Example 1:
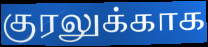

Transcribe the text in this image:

குரலுக்காக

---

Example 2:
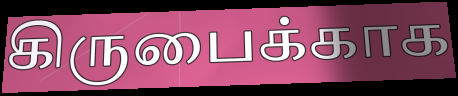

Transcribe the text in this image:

கிருபைக்காக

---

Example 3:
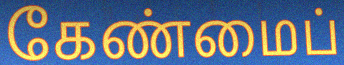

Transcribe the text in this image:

கேண்மைப்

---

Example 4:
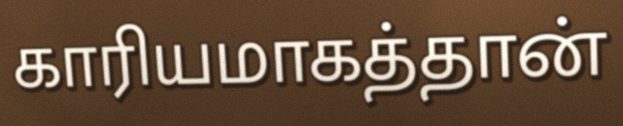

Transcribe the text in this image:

காரியமாகத்தான்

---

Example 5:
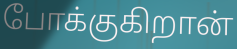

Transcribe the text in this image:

போக்குகிறான்